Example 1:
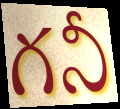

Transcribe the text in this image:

గనీ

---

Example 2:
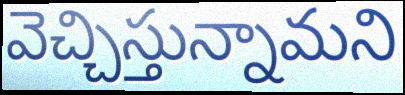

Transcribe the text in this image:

వెచ్చిస్తున్నామని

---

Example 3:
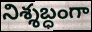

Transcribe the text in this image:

నిశ్శబ్ధంగా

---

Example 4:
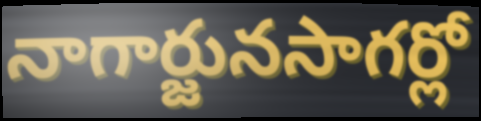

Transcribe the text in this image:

నాగార్జునసాగర్లో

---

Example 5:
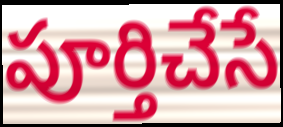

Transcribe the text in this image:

పూర్తిచేసే